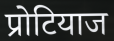
प्रोटियाज